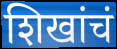
शिखांचं